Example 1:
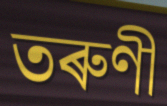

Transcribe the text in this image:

তৰুণী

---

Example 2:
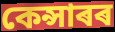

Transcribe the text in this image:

কেন্সাৰৰ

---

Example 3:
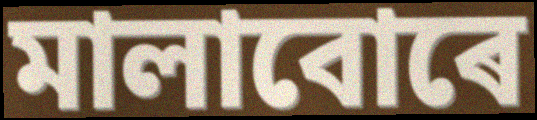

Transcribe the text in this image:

মালাবোৰে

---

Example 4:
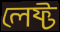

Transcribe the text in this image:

লেফ্ট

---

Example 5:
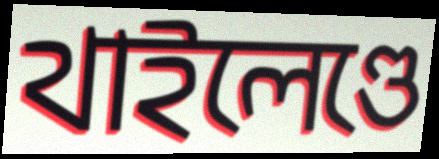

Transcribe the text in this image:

থাইলেণ্ডে